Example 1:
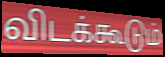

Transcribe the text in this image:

விடக்கூடும்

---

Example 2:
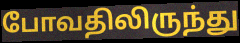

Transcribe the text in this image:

போவதிலிருந்து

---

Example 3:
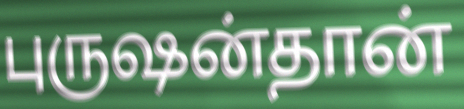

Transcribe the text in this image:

புருஷன்தான்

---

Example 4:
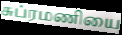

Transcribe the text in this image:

சுப்ரமணியை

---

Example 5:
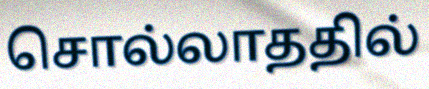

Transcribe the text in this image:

சொல்லாததில்